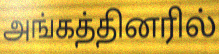
அங்கத்தினரில்